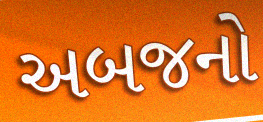
અબજનો